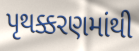
પૃથક્કરણમાંથી